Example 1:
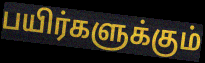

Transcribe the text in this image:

பயிர்களுக்கும்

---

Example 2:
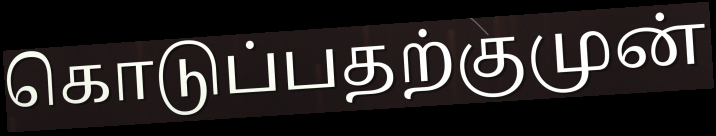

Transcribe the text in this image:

கொடுப்பதற்குமுன்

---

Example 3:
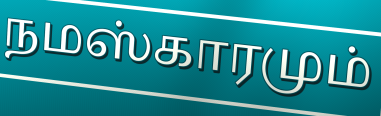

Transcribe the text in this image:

நமஸ்காரமும்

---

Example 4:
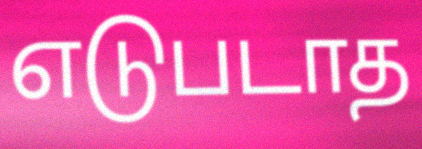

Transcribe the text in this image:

எடுபடாத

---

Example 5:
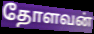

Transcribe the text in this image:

தோளவன்